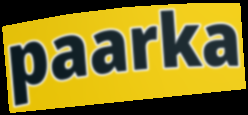
paarka